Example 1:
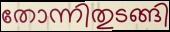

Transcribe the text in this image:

തോന്നിതുടങ്ങി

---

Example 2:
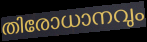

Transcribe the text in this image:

തിരോധാനവും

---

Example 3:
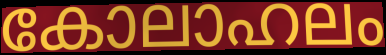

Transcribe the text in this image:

കോലാഹലം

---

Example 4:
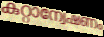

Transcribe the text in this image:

കുറ്റാന്വേഷണം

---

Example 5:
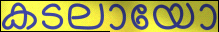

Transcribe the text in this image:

കടലായോ